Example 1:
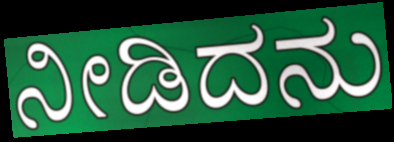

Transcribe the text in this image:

ನೀಡಿದನು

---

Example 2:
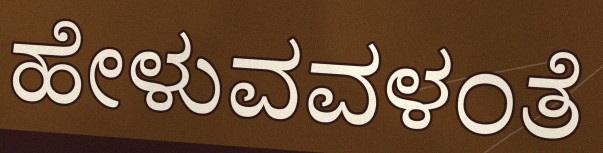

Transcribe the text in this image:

ಹೇಳುವವಳಂತೆ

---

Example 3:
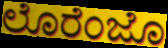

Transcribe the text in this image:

ಲೊರೆಂಜೊ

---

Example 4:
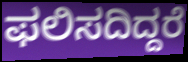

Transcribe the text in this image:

ಫಲಿಸದಿದ್ದರೆ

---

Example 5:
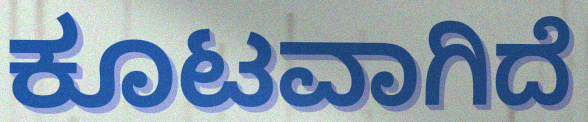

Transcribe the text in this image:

ಕೂಟವಾಗಿದೆ